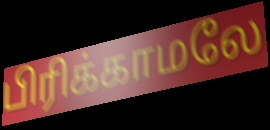
பிரிக்காமலே